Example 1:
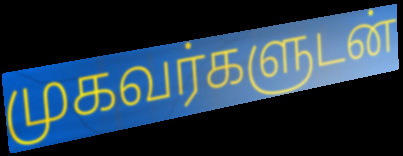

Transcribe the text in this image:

முகவர்களுடன்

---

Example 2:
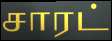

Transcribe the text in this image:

சாரட்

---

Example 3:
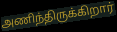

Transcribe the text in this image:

அணிந்திருக்கிறார்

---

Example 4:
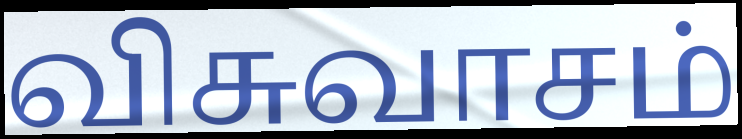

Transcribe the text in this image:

விசுவாசம்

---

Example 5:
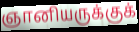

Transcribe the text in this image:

ஞானியருக்குக்